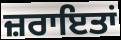
ਜ਼ਰਾਇਤਾਂ